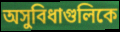
অসুবিধাগুলিকে